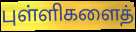
புள்ளிகளைத்